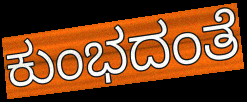
ಕುಂಭದಂತೆ